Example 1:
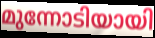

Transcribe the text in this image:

മുന്നോടിയായി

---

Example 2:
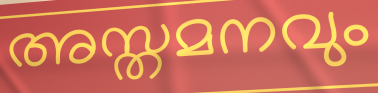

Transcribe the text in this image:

അസ്തമനവും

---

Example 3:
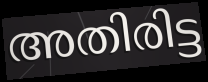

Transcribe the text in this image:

അതിരിട്ട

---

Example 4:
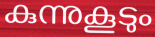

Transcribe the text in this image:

കുന്നുകൂടും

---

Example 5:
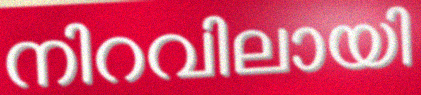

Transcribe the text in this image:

നിറവിലായി